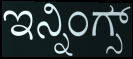
ಇನ್ನಿಂಗ್ಸ್